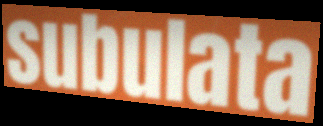
subulata